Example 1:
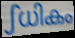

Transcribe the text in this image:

ഽധികം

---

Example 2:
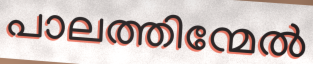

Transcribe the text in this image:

പാലത്തിന്മേൽ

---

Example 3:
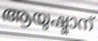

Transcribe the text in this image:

ആയുഷ്മാന്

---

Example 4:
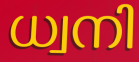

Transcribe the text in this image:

ധ്വനി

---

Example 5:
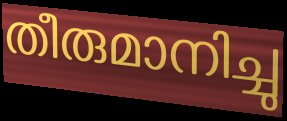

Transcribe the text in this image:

തീരുമാനിച്ചു